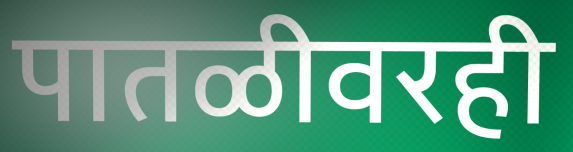
पातळीवरही